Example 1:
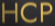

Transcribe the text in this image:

HCP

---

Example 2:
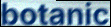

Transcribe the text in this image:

botanic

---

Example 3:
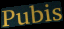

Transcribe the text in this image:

Pubis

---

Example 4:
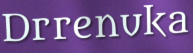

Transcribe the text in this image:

Drrenuka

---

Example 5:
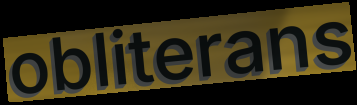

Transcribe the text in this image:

obliterans